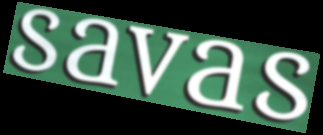
savas